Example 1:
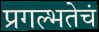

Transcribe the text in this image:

प्रगल्भतेचं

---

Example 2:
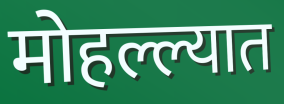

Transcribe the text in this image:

मोहल्ल्यात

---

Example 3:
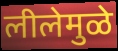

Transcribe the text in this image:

लीलेमुळे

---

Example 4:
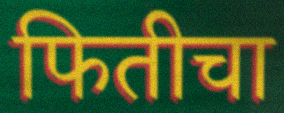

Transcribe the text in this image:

फितीचा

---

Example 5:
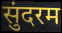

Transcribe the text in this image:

सुंदरम